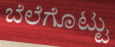
ಬೆಲೆಗೊಟ್ಟು